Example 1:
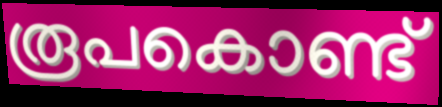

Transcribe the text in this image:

രൂപകൊണ്ട്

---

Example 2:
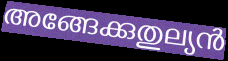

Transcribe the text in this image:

അങ്ങേക്കുതുല്യൻ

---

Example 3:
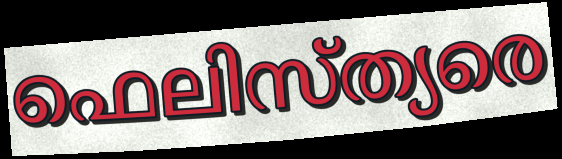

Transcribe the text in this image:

ഫെലിസ്ത്യരെ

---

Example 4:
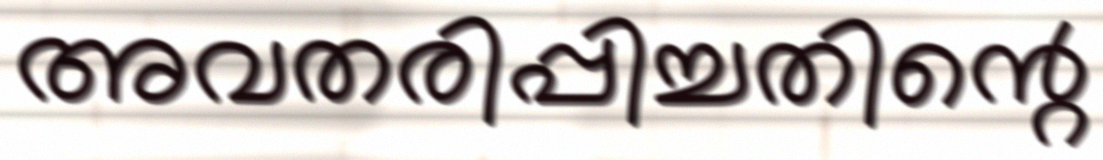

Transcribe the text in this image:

അവതരിപ്പിച്ചതിന്റെ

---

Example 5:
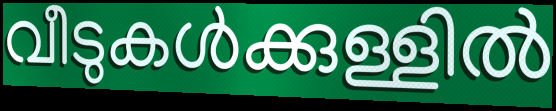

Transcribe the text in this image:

വീടുകൾക്കുള്ളിൽ